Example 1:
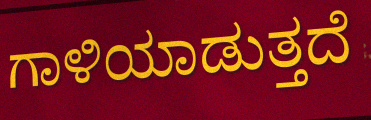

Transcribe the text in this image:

ಗಾಳಿಯಾಡುತ್ತದೆ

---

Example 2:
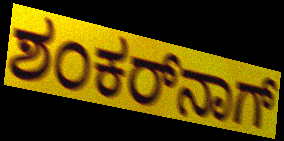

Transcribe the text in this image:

ಶಂಕರ್‌ನಾಗ್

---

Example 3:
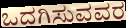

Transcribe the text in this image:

ಒದಗಿಸುವವರ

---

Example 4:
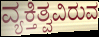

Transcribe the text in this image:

ವ್ಯಕ್ತಿತ್ವವಿರುವ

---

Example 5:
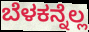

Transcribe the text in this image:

ಬೆಳಕನ್ನೆಲ್ಲ